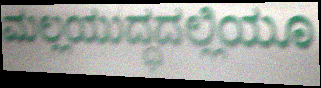
ಮಲ್ಲಯುದ್ಧದಲ್ಲಿಯೂ